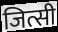
जित्सी